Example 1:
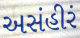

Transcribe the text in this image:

અસંહીરં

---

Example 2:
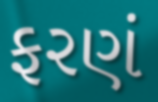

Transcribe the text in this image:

ફરણં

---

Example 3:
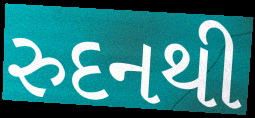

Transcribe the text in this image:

રુદનથી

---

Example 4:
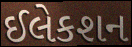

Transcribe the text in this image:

ઈલેકશન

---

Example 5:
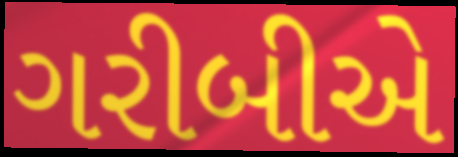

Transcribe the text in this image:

ગરીબીએ